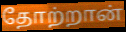
தோற்றான்